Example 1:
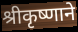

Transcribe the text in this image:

श्रीकृष्णाने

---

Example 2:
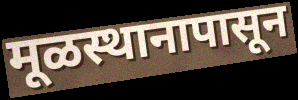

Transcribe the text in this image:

मूळस्थानापासून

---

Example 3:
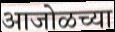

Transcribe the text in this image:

आजोळच्या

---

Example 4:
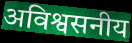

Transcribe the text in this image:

अविश्वसनीय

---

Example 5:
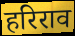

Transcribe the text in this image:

हरिराव